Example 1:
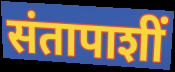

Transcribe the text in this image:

संतापाशीं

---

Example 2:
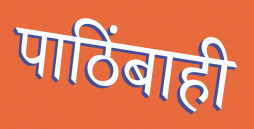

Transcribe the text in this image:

पाठिंबाही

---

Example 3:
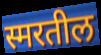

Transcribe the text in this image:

स्मरतील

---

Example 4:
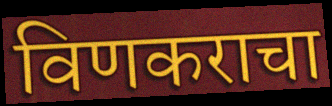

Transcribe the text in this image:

विणकराचा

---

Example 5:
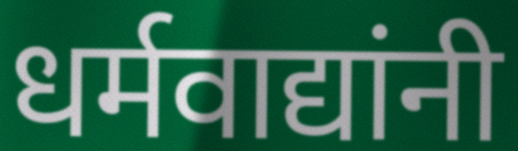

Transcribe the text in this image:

धर्मवाद्यांनी